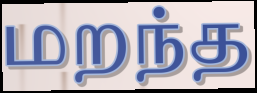
மறந்த